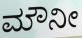
ಮೌನೀ